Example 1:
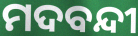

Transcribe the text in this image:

ମଦବନ୍ଦୀ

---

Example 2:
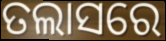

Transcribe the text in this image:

ତଲାସରେ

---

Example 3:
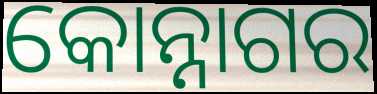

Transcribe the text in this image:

କୋନ୍ନାଗର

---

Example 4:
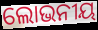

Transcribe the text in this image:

ଲୋଭନୀୟ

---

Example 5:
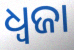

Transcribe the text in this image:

ଧ୍ୱଜା